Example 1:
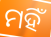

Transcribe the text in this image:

ମହିଁ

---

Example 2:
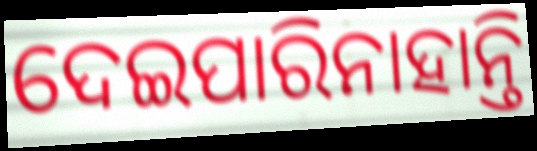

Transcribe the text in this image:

ଦେଇପାରିନାହାନ୍ତି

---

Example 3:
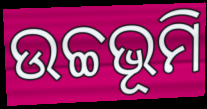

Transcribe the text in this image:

ଉଚ୍ଚଭୂମି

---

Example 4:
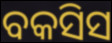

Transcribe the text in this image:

ବକସିସ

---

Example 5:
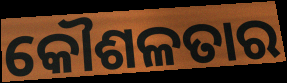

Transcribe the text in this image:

କୌଶଳତାର